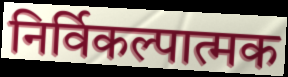
निर्विकल्पात्मक